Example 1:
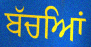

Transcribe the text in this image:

ਬੱਚਆਿਂ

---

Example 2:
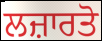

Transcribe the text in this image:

ਲਜ਼ਾਰਤੋ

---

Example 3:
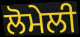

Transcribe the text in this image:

ਲੋਮੇਲੀ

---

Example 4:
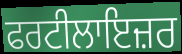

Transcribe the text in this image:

ਫਰਟੀਲਾਇਜ਼ਰ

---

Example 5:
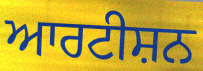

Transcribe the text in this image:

ਆਰਟੀਸ਼ਨ